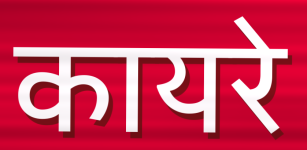
कायरे